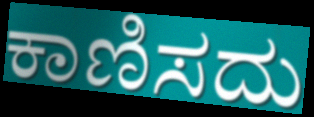
ಕಾಣಿಸದು